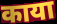
काया